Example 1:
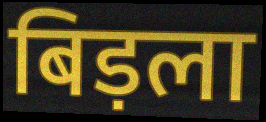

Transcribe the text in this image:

बिड़ला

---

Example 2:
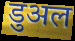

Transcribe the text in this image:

डुअल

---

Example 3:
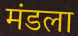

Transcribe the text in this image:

मंडला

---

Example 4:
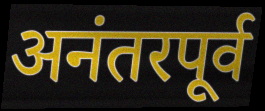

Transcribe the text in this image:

अनंतरपूर्व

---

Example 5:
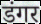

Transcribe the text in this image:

डंगर